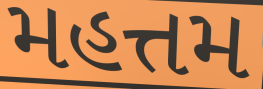
મહત્તમ